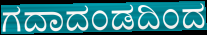
ಗದಾದಂಡದಿಂದ